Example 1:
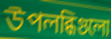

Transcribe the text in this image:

উপলব্ধিগুলো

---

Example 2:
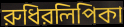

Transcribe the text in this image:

রুধিরলিপিকা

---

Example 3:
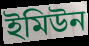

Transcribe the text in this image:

ইমিউন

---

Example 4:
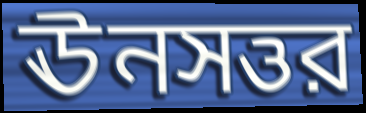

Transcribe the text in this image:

ঊনসত্তর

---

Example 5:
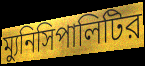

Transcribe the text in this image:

ম্যুনিসিপালিটির